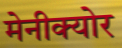
मेनीक्योर